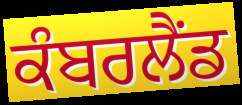
ਕੰਬਰਲੈਂਡ